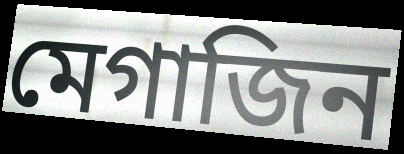
মেগাজিন